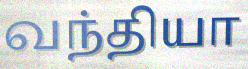
வந்தியா